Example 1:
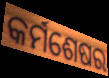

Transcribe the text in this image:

କର୍ମଶେଷର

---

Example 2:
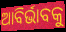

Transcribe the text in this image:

ଆବିର୍ଭାବକୁ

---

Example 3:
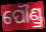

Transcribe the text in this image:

ପୌଣ୍ଡ୍ର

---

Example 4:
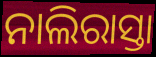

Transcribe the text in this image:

ନାଲିରାସ୍ତା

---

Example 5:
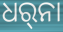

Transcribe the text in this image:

ଧର୍‌ନା